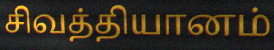
சிவத்தியானம்